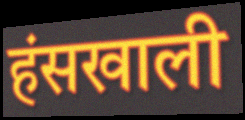
हंसखाली